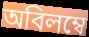
অবিলম্বে